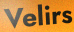
Velirs